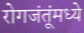
रोगजंतूंमध्ये